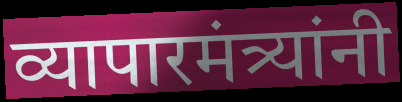
व्यापारमंत्र्यांनी